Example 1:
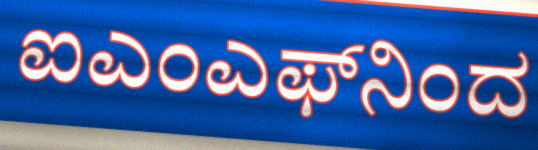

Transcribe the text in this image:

ಐಎಂಎಫ್‌ನಿಂದ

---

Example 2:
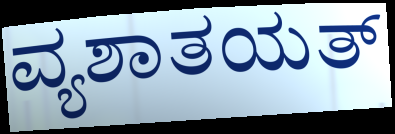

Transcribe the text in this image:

ವ್ಯಶಾತಯತ್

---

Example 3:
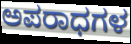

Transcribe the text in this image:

ಅಪರಾಧಗಳ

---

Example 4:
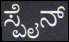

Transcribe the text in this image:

ಸ್ಪೈನ್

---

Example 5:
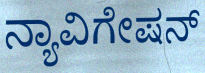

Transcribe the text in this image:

ನ್ಯಾವಿಗೇಷನ್